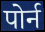
पोर्न